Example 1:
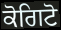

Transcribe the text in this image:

ਕੋਗਿਟੋ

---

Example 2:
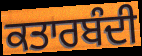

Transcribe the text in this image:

ਕਤਾਰਬੰਦੀ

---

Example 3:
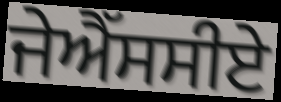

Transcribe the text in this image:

ਜੇਐੱਸਸੀਏ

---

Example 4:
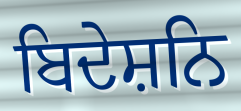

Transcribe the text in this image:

ਬਿਦੇਸ਼ਨਿ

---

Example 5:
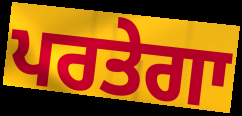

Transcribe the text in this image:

ਪਰਤੇਗਾ